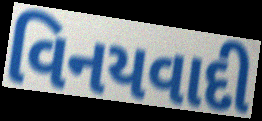
વિનયવાદી